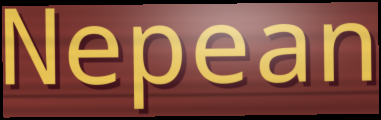
Nepean